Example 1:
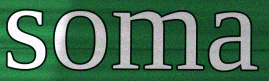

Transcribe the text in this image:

soma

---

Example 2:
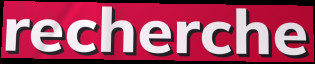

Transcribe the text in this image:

recherche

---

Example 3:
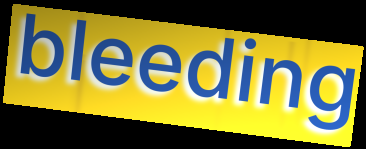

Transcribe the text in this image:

bleeding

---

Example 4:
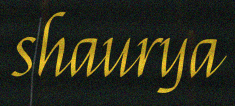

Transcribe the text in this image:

shaurya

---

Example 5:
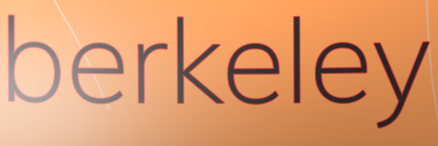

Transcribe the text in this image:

berkeley